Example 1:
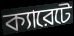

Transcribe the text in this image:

ক্যারেটে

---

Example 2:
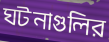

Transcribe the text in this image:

ঘটনাগুলির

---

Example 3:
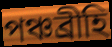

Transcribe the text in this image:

পঞ্চব্রীহি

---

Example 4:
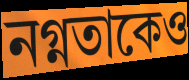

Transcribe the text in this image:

নগ্নতাকেও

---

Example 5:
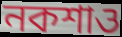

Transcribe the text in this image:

নকশাও